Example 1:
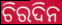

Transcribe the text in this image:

ଚିରଦିନ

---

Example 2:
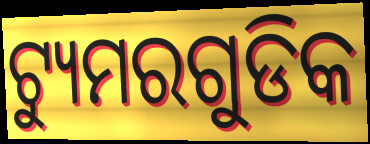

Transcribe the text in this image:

ଟ୍ୟୁମରଗୁଡିକ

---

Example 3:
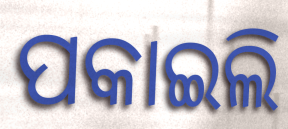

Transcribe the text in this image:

ପକାଇଲି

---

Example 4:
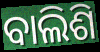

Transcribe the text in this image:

ବାଲିଶି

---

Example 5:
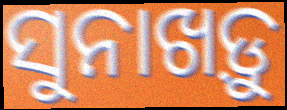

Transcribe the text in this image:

ସୁନାଖଡ଼ୁ